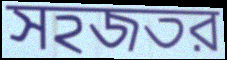
সহজতর